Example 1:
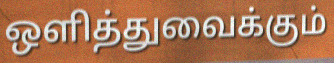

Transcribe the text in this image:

ஒளித்துவைக்கும்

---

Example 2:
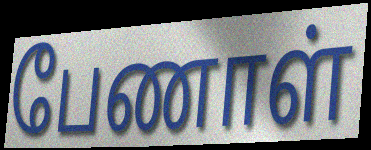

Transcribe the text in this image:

பேணாள்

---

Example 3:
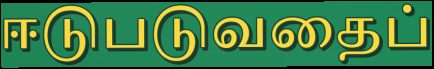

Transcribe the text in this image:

ஈடுபடுவதைப்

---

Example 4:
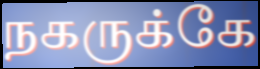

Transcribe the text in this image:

நகருக்கே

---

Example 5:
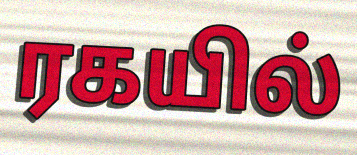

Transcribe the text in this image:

ரகயில்